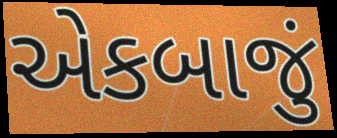
એકબાજું